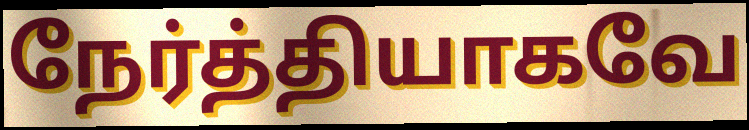
நேர்த்தியாகவே